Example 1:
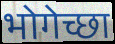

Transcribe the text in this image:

भोगेच्छा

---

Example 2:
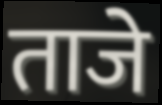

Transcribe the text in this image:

ताजे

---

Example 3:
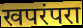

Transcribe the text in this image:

खपरंपरा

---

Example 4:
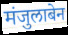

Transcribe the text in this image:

मंजुलाबेन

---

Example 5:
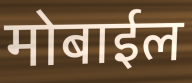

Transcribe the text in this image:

मोबाईल